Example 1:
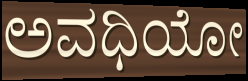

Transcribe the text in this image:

ಅವಧಿಯೋ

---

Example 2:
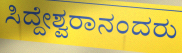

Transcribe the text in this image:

ಸಿದ್ದೇಶ್ವರಾನಂದರು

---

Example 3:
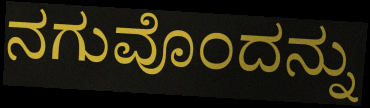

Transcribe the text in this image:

ನಗುವೊಂದನ್ನು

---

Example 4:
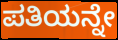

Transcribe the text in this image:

ಪತಿಯನ್ನೇ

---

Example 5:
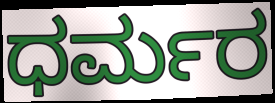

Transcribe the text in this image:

ಧರ್ಮರ